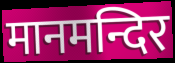
मानमन्दिर